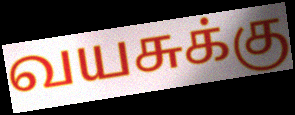
வயசுக்கு